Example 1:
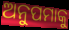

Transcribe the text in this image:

ଅନୁପମାକୁ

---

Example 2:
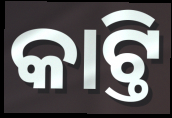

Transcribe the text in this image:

କାଟ୍ତି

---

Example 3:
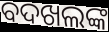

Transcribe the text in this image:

ବଦଖଲଙ୍କ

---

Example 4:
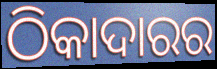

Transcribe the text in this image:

ଠିକାଦାରର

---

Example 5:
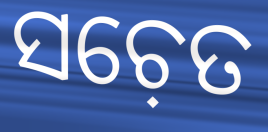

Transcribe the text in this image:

ସଚ଼େତ